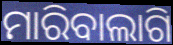
ମାରିବାଲାଗି